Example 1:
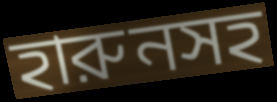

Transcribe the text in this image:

হারুনসহ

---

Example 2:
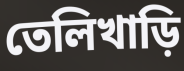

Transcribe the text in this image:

তেলিখাড়ি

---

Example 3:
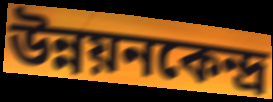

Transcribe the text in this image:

উন্নয়নকেন্দ্র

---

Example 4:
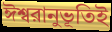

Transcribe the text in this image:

ঈশ্বরানুভূতিই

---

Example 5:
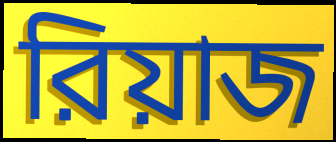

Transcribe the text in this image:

রিয়াজ